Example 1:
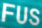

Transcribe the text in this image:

FUS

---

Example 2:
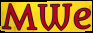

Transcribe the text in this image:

MWe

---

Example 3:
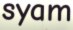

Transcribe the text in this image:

syam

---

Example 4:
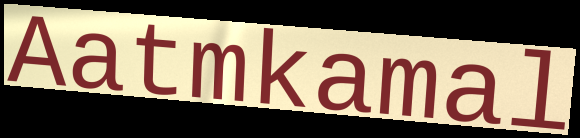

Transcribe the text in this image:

Aatmkamal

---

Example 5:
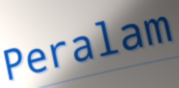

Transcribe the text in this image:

Peralam